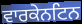
ਵਾਰਕੇਨਟਿਨ